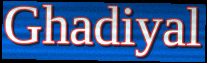
Ghadiyal